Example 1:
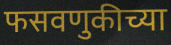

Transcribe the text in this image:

फसवणुकीच्या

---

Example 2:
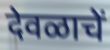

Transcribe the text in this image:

देवळाचें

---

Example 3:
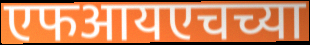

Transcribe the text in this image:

एफआयएचच्या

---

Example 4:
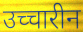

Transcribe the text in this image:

उच्चारीन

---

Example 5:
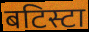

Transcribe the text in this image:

बटिस्टा